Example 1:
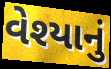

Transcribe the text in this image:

વેશ્યાનું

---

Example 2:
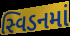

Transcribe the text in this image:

સ્વિડનમાં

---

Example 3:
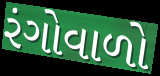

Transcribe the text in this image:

રંગોવાળો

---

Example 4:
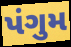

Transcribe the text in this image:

પંગુમ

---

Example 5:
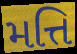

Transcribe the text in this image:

મત્તિ